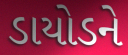
ડાયોડને